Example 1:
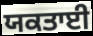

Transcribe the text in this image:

ਯਕਤਾਈ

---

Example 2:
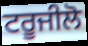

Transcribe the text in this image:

ਟਰੂਜੀਲੋ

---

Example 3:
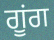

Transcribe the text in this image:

ਗੂਂਗ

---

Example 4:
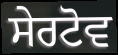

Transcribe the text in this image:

ਸੇਰਟੋਵ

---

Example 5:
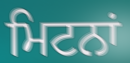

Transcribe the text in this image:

ਮਿਟਨਾਂ